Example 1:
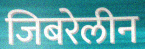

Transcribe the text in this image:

जिबरेलीन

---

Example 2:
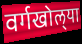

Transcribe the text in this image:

वर्गखोल्या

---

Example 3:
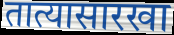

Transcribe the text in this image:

तात्यासारखा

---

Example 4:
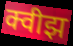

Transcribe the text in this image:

क्वीझ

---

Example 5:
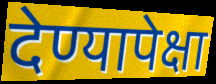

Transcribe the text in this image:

देण्यापेक्षा